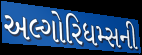
અલ્ગોરિધમ્સની